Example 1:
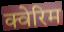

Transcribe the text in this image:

क्वेरिम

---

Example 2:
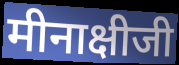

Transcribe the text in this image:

मीनाक्षीजी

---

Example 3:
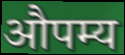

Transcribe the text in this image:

औपम्य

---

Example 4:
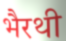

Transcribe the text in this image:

भैरथी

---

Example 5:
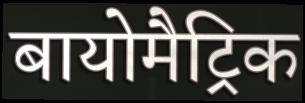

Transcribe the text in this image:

बायोमैट्रिक